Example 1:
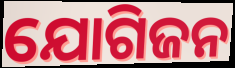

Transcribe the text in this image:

ଯୋଗିଜନ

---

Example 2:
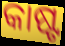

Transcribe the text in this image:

କାଷ୍ଟ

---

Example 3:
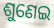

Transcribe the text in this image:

ଶୁଣେଇ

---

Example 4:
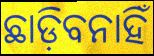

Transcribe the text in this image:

ଛାଡ଼ିବନାହିଁ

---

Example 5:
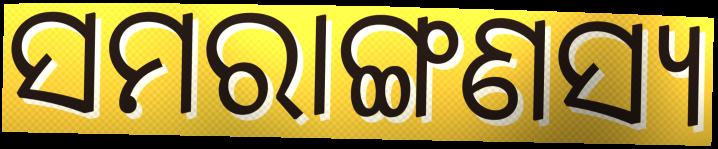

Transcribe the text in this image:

ସମରାଙ୍ଗଣସ୍ୟ